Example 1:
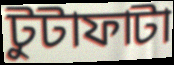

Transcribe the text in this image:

টুটাফাটা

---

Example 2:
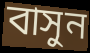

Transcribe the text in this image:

বাসুন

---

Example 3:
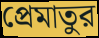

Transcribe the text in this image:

প্রেমাতুর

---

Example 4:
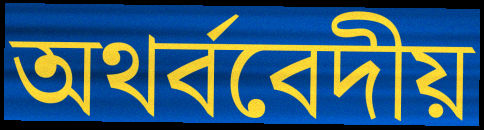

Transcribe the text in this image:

অথর্ববেদীয়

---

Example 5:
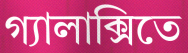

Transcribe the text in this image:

গ্যালাক্সিতে